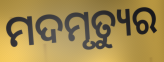
ମଦମୃତ୍ୟୁର